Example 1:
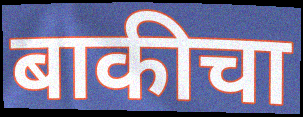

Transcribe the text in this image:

बाकीचा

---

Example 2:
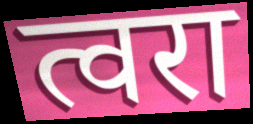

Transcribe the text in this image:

त्वरा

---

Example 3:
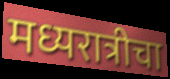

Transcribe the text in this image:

मध्यरात्रीचा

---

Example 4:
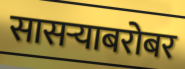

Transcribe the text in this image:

सासऱ्याबरोबर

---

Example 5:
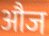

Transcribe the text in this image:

औज